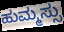
ಹುಮ್ಮಸ್ಸು